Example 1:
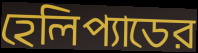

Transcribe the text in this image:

হেলিপ্যাডের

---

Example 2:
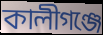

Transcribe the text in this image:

কালীগঞ্জে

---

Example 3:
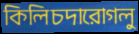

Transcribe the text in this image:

কিলিচদারোগলু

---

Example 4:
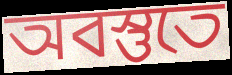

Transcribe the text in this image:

অবস্তুতে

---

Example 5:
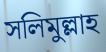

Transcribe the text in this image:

সলিমুল্লাহ